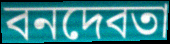
বনদেবতা